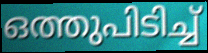
ഒത്തുപിടിച്ച്